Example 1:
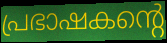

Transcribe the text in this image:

പ്രഭാഷകന്റെ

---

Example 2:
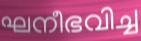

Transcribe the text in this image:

ഘനീഭവിച്ച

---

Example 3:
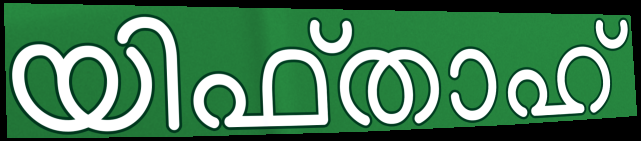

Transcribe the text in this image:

യിഫ്താഹ്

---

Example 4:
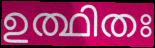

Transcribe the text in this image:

ഉത്ഥിതഃ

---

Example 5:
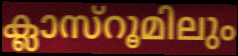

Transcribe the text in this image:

ക്ലാസ്റൂമിലും